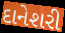
દાનેશરી